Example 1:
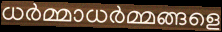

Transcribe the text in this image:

ധർമ്മാധർമ്മങ്ങളെ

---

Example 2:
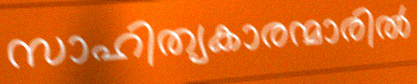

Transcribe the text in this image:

സാഹിത്യകാരന്മാരിൽ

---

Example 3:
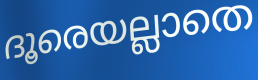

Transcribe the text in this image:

ദൂരെയല്ലാതെ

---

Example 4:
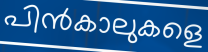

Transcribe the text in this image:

പിൻകാലുകളെ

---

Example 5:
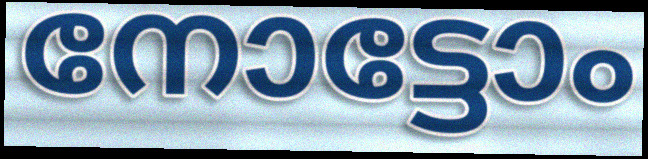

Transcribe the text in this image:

നോട്ടോം